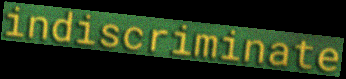
indiscriminate